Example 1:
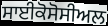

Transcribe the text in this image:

ਸਾਈਕੋਸੋਸੀਅਲ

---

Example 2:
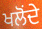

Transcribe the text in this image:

ਖਲੋਂਦੇ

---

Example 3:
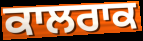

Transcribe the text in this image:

ਕਾਲਰਾਕ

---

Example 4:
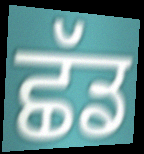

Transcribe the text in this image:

ਛੱਡ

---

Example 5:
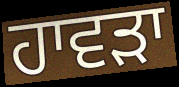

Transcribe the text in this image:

ਹਾਵਡ਼ਾ